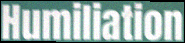
Humiliation